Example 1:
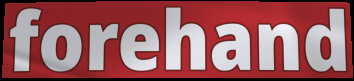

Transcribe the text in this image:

forehand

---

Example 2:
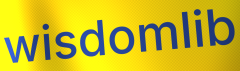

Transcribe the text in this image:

wisdomlib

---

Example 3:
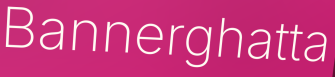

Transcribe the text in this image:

Bannerghatta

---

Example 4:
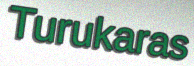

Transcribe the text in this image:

Turukaras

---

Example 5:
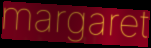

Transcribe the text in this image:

margaret